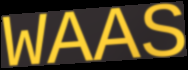
WAAS